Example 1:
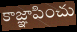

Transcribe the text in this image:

కాజ్ఞాపించు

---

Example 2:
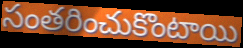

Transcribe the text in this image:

సంతరించుకొంటాయి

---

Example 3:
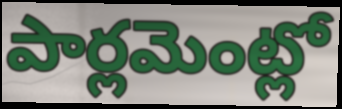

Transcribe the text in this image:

పార్లమెంట్లో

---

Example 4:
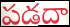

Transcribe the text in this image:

పడదా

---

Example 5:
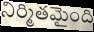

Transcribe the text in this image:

నిర్మితమైంది